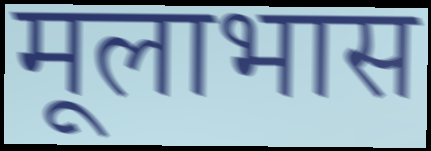
मूलाभास